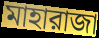
মাহারাজা